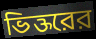
ভিক্তরের